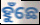
ହୁଁଛେ